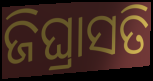
ଜିଘ୍ରାସତି